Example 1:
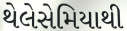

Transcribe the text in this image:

થેલેસેમિયાથી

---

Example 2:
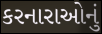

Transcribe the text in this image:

કરનારાઓનું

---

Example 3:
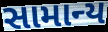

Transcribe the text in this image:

સામાન્ય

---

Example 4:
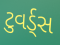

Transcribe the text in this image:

ટુવર્ડ્સ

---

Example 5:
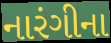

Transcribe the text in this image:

નારંગીના